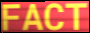
FACT